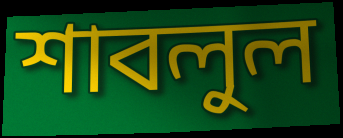
শাবলুল